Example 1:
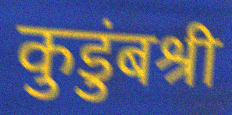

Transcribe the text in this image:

कुडुंबश्री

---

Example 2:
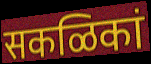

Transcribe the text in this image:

सकळिकां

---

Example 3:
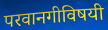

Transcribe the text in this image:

परवानगीविषयी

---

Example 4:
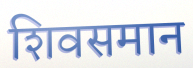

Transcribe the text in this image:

शिवसमान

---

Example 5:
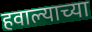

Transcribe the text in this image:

हवाल्याच्या